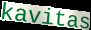
kavitas